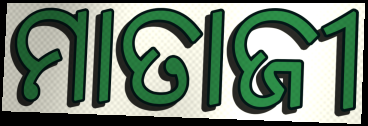
ମାତାଜୀ